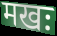
मखः